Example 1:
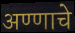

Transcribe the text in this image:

अण्णाचे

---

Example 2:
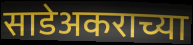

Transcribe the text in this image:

साडेअकराच्या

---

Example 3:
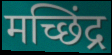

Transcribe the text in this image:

मच्छिंद्र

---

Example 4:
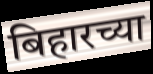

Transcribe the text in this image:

बिहारच्या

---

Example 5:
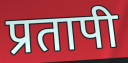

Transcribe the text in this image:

प्रतापी